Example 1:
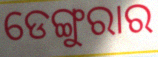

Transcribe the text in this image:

ଡେଙ୍ଗୁରାର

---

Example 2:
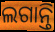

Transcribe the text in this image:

ଲଗାନ୍ତି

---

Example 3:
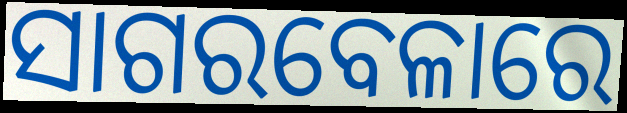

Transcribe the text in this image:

ସାଗରବେଳାରେ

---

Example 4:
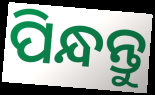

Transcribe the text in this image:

ପିନ୍ଧନ୍ତୁ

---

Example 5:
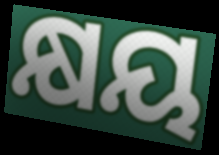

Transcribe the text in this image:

କ୍ଷୟ